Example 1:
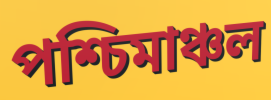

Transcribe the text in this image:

পশ্চিমাঞ্চল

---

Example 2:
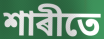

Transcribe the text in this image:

শাৰীতে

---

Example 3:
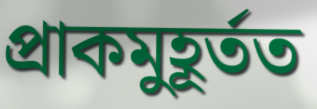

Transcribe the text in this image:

প্ৰাকমুহূৰ্তত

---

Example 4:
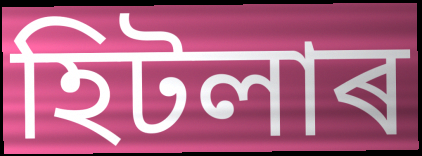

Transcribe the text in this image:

হিটলাৰ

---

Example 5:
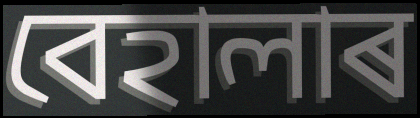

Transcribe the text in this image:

বেহালাৰ